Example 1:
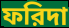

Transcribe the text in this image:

ফরিদা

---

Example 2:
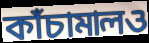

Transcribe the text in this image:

কাঁচামালও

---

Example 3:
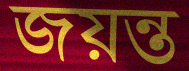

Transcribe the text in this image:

জয়ন্ত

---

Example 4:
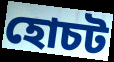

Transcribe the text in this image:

হোচট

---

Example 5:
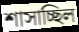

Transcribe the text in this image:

শাসাচ্ছিল